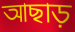
আছাড়